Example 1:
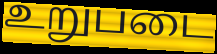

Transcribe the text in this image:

உறுபடை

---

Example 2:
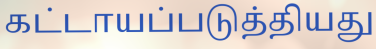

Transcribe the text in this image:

கட்டாயப்படுத்தியது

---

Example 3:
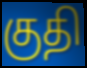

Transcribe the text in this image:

குதி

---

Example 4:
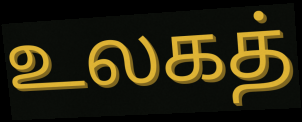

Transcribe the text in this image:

உலகத்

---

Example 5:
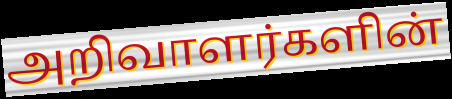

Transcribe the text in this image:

அறிவாளர்களின்